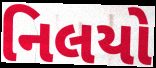
નિલયો